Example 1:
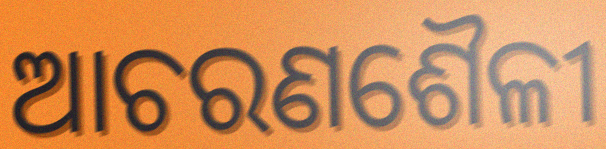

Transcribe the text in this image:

ଆଚରଣଶୈଳୀ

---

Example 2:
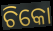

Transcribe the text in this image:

ଚିକୋ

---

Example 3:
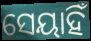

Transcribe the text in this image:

ସେୟାହିଁ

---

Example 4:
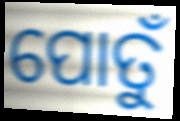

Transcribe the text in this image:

ପୋତୁଁ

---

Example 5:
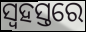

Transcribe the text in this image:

ସ୍ୱହସ୍ତରେ